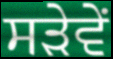
ਸੜੇਵੇਂ